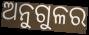
ଅନୁଗୁଳର